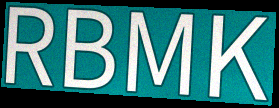
RBMK